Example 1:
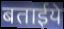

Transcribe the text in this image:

बताईये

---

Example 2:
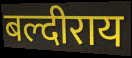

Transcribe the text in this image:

बल्दीराय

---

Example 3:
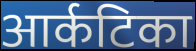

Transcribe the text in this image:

आर्कटिका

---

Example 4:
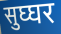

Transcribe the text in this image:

सुघ्घर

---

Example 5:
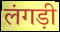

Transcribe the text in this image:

लंगड़ी